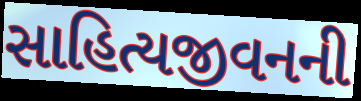
સાહિત્યજીવનની